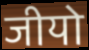
जीयो